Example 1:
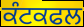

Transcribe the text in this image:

ਕੰਟਕਫਲ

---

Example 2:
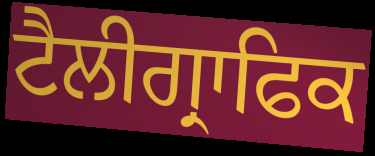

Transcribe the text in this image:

ਟੈਲੀਗ੍ਰਾਫਿਕ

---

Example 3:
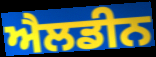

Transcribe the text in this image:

ਐਲਡੀਨ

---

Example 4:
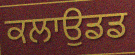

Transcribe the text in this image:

ਕਲਾਉਡਡ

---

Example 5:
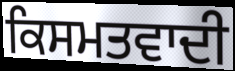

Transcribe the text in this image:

ਕਿਸਮਤਵਾਦੀ